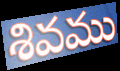
శివము